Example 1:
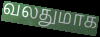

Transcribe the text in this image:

வலதுமாக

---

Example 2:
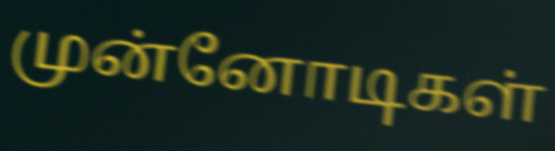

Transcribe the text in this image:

முன்னோடிகள்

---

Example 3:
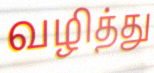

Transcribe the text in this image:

வழித்து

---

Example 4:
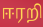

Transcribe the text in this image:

ஈரறி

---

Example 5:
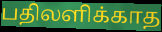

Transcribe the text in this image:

பதிலளிக்காத